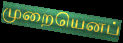
முறையெனப்